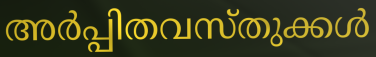
അർപ്പിതവസ്തുക്കൾ